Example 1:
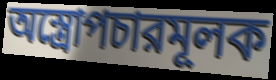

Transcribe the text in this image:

অস্ত্রোপচারমূলক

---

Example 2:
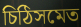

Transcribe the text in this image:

চিঠিসমেত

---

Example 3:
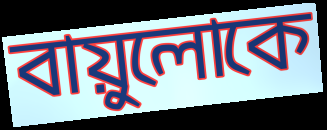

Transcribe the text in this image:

বায়ুলোকে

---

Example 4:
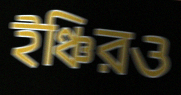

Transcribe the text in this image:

ইঞ্চিরও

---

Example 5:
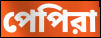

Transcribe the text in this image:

পেপিরা